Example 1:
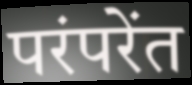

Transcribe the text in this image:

परंपरेंत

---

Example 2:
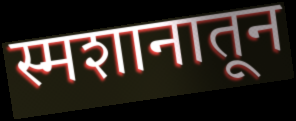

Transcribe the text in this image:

स्मशानातून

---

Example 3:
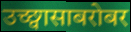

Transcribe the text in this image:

उच्छ्वासाबरोबर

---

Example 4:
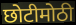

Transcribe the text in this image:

छोटीमोठी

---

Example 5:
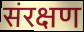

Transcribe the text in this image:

संरक्षण